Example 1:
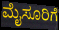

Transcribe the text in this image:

ಮೈಸೂರಿಗೆ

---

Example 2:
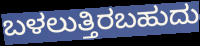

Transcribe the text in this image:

ಬಳಲುತ್ತಿರಬಹುದು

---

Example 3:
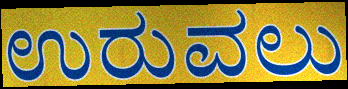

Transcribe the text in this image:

ಉರುವಲು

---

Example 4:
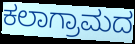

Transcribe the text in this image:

ಕಲಾಗ್ರಾಮದ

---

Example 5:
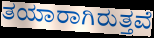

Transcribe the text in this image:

ತಯಾರಾಗಿರುತ್ತವೆ